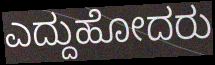
ಎದ್ದುಹೋದರು